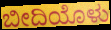
ಬೀದಿಯೊಳು